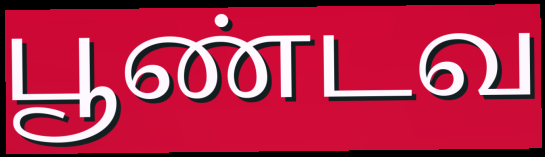
பூண்டவ